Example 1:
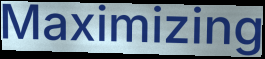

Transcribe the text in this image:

Maximizing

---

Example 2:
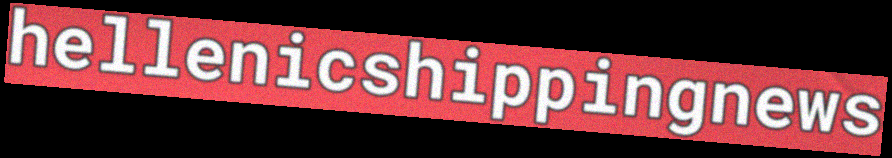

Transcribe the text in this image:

hellenicshippingnews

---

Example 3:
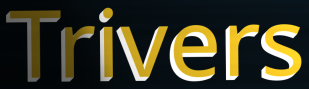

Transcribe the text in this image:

Trivers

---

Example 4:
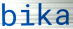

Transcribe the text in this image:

bika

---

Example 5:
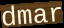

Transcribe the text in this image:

dmar